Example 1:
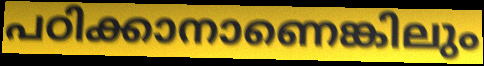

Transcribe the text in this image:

പഠിക്കാനാണെങ്കിലും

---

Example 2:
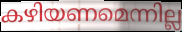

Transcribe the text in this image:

കഴിയണമെന്നില്ല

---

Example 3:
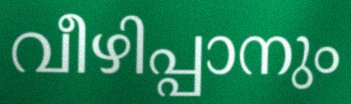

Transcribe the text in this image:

വീഴിപ്പാനും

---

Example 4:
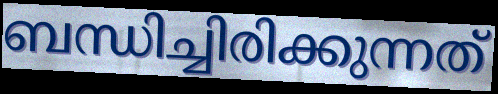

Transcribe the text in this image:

ബന്ധിച്ചിരിക്കുന്നത്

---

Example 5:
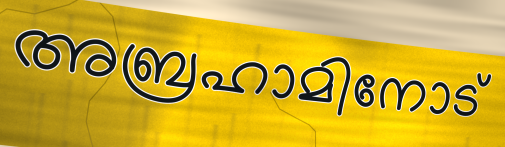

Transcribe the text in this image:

അബ്രഹാമിനോട്